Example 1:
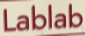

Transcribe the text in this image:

Lablab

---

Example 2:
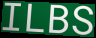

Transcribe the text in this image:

ILBS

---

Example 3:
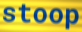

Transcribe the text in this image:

stoop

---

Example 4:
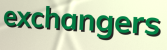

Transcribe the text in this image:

exchangers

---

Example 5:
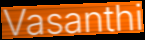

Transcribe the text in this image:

Vasanthi